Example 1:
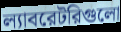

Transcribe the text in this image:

ল্যাবরেটরিগুলো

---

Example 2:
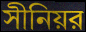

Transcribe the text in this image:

সীনিয়র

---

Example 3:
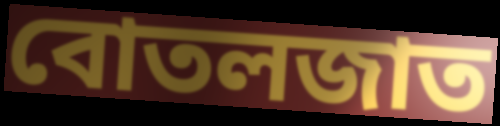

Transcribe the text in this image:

বোতলজাত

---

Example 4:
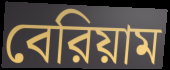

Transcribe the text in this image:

বেরিয়াম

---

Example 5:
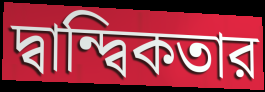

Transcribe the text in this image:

দ্বান্দ্বিকতার